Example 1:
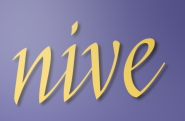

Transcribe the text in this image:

nive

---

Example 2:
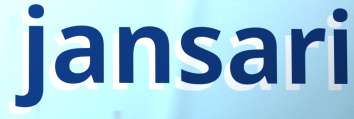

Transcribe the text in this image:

jansari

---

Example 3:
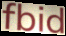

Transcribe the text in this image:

fbid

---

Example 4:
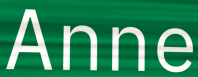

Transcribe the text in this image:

Anne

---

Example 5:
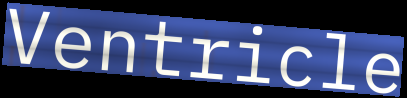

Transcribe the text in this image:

Ventricle